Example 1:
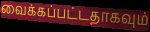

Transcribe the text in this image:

வைக்கப்பட்டதாகவும்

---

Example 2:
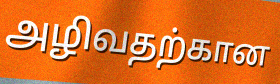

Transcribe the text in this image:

அழிவதற்கான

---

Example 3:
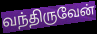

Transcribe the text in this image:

வந்திருவேன்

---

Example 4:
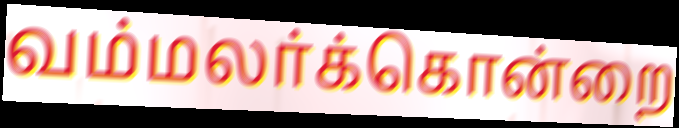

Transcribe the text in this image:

வம்மலர்க்கொன்றை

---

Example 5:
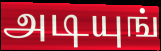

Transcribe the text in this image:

அடியுங்